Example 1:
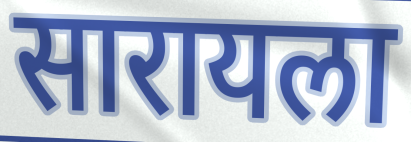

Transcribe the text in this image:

सारायला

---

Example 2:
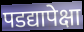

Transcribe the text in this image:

पडद्यापेक्षा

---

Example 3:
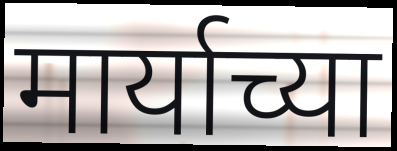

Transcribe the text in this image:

मार्याच्या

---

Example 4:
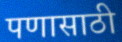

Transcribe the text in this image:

पणासाठी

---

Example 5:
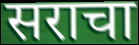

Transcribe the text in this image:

सराचा